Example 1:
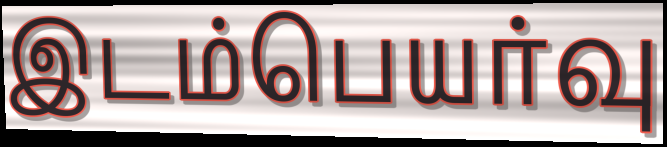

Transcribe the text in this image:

இடம்பெயர்வு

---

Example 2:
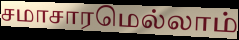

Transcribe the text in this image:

சமாசாரமெல்லாம்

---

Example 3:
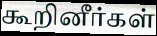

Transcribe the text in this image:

கூறினீர்கள்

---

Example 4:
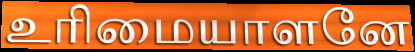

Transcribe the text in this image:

உரிமையாளனே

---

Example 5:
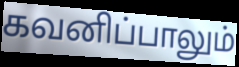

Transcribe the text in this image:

கவனிப்பாலும்